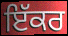
ਇੱਕਰ